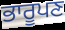
ਭਾਰੂਪਣ